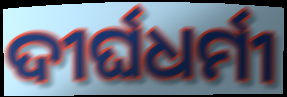
ଦୀର୍ଘଧର୍ମୀ